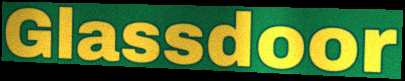
Glassdoor